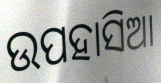
ଉପହାସିଆ